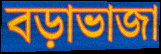
বড়াভাজা